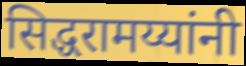
सिद्धरामय्यांनी